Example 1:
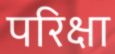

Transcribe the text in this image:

परिक्षा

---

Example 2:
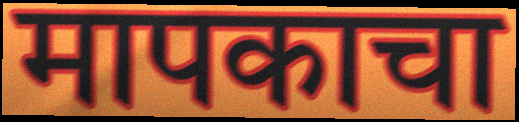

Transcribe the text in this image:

मापकाचा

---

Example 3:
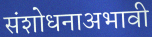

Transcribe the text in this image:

संशोधनाअभावी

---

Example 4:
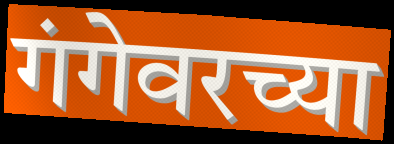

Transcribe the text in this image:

गंगेवरच्या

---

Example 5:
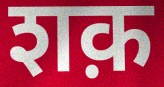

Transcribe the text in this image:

शक़